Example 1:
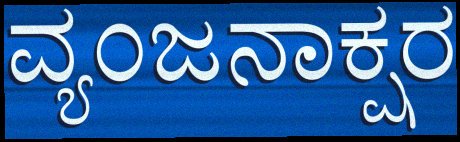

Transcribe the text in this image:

ವ್ಯಂಜನಾಕ್ಷರ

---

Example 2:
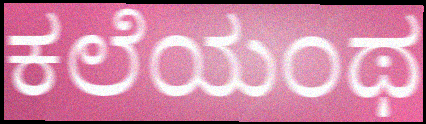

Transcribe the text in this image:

ಕಲೆಯಂಥ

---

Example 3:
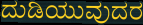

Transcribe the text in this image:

ದುಡಿಯುವುದರ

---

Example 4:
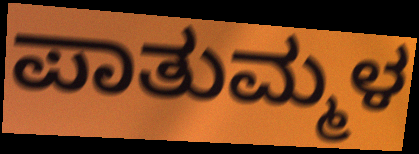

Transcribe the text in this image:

ಪಾತುಮ್ಮಳ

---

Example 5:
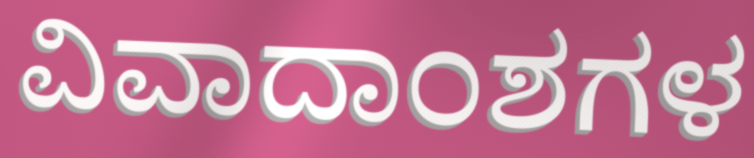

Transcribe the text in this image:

ವಿವಾದಾಂಶಗಳ